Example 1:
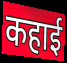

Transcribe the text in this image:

कहाई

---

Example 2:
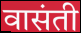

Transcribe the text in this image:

वासंती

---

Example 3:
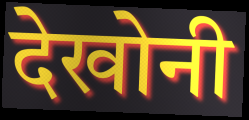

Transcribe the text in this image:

देखोनी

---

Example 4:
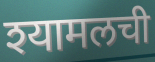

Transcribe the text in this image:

श्यामलची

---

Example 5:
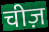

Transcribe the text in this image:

चीज़